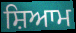
ਸ਼ਿਆਮ